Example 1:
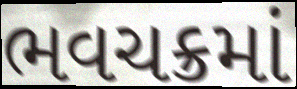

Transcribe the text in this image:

ભવચક્રમાં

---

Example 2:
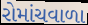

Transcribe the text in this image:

રોમાંચવાળા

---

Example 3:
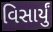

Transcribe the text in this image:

વિસાર્યું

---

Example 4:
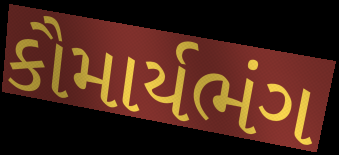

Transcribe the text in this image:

કૌમાર્યભંગ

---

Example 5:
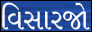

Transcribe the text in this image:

વિસારજો